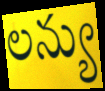
లన్యు